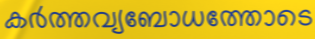
കർത്തവ്യബോധത്തോടെ